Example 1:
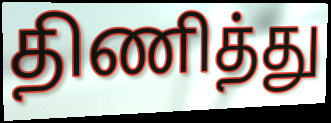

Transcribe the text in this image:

திணித்து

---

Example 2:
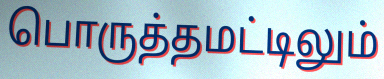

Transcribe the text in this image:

பொருத்தமட்டிலும்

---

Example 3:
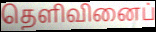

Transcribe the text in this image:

தெளிவினைப்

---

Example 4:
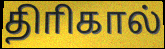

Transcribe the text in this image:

திரிகால்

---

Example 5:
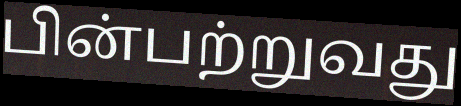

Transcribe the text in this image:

பின்பற்றுவது